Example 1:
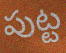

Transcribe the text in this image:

పుట్ట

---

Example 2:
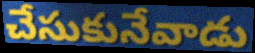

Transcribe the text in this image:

చేసుకునేవాడు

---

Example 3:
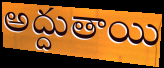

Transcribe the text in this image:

అద్దుతాయి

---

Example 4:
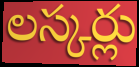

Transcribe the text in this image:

లస్కర్లు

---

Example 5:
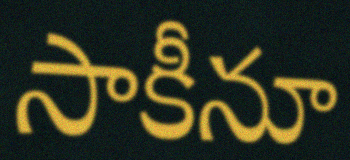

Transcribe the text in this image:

సాకీనూ